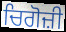
ਚਿਗੋਜ਼ੀ